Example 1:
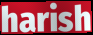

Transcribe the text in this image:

harish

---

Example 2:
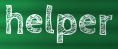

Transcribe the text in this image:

helper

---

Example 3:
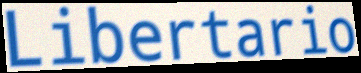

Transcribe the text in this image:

Libertario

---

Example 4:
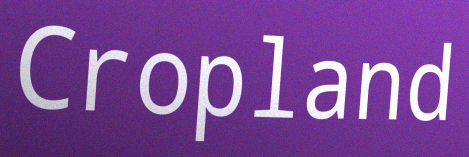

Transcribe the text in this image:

Cropland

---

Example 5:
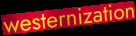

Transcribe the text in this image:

westernization